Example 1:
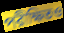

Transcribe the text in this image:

পরীক্ষিতও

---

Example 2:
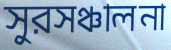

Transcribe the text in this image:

সুরসঞ্চালনা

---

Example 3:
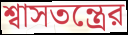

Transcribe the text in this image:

শ্বাসতন্ত্রের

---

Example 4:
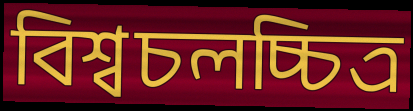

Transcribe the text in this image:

বিশ্বচলচ্চিত্র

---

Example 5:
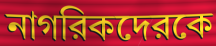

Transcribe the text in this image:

নাগরিকদেরকে